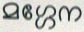
മഗ്ഗേന